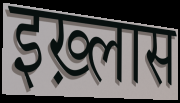
इख़्लास